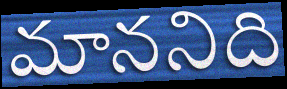
మాననిది